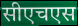
सीएचएस